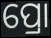
ପ୍ରୋ